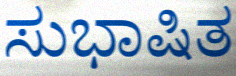
ಸುಭಾಷಿತ